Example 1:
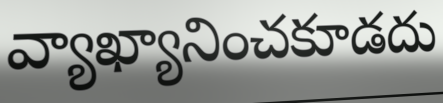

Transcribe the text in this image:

వ్యాఖ్యానించకూడదు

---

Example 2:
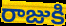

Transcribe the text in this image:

రాజుకి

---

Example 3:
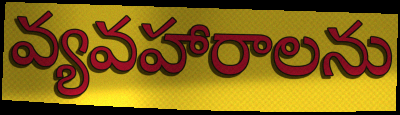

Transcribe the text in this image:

వ్యవహారాలను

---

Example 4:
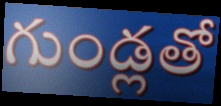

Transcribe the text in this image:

గుండ్లతో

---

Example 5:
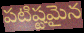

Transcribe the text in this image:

పటిష్టమైన